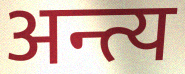
अन्त्य